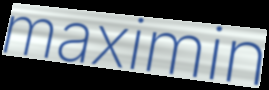
maximin